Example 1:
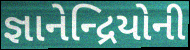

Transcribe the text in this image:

જ્ઞાનેન્દ્રિયોની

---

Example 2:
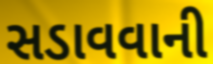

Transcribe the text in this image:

સડાવવાની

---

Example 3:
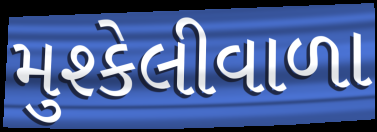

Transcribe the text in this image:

મુશ્કેલીવાળા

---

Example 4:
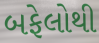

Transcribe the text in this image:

બફેલોથી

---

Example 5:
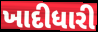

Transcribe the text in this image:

ખાદીધારી